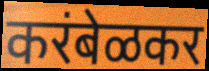
करंबेळकर